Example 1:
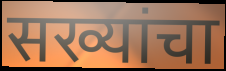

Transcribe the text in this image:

सख्यांचा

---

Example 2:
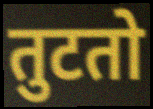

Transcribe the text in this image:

तुटतो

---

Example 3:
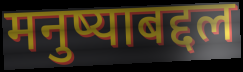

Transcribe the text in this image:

मनुष्याबद्दल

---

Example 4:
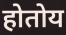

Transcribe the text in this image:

होतोय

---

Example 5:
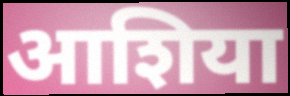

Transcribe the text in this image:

आशिया